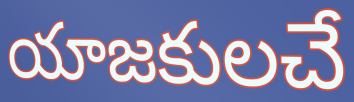
యాజకులచే